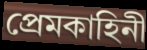
প্রেমকাহিনী